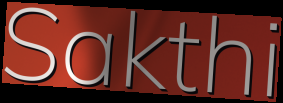
Sakthi